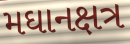
મઘાનક્ષત્ર